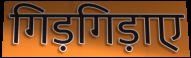
गिड़गिड़ाए